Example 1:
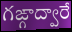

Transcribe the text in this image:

గఙ్గాద్వారే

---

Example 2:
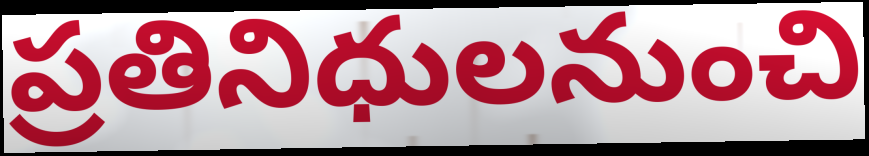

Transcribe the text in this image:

ప్రతినిధులనుంచి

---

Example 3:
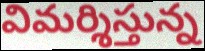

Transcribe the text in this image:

విమర్శిస్తున్న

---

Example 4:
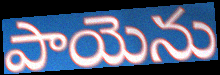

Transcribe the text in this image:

పాయెను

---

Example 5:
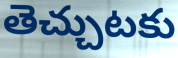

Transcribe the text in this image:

తెచ్చుటకు